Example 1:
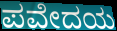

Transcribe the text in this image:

ಪವೇದಯ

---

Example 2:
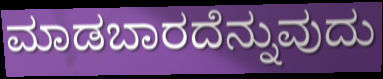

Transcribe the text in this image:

ಮಾಡಬಾರದೆನ್ನುವುದು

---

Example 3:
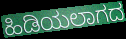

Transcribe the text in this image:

ಹಿಡಿಯಲಾಗದ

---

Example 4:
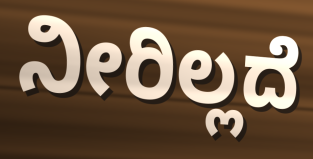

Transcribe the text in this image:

ನೀರಿಲ್ಲದೆ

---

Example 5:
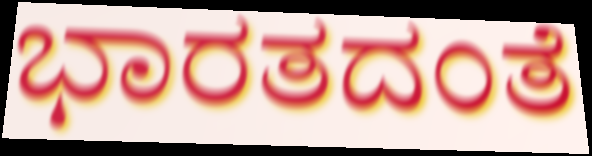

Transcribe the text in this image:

ಭಾರತದಂತೆ